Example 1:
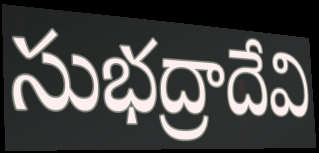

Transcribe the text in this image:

సుభద్రాదేవి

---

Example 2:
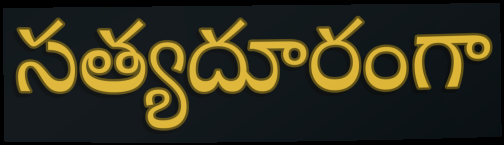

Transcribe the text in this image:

సత్యదూరంగా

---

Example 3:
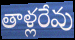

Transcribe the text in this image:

తాళ్లరేవు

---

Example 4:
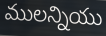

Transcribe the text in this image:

ములన్నియు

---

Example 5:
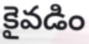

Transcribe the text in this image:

కైవడిం